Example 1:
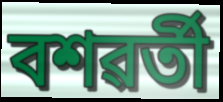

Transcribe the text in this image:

বশৱৰ্তী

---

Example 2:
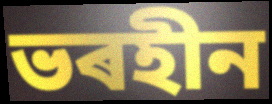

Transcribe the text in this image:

ভৰহীন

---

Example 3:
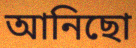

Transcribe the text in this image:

আনিছো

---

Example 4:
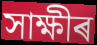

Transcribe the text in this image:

সাক্ষীৰ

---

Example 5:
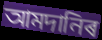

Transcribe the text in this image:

আমদানিৰ